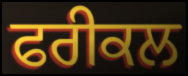
ਫਰੀਕਲ